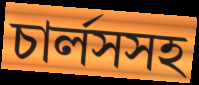
চার্লসসহ